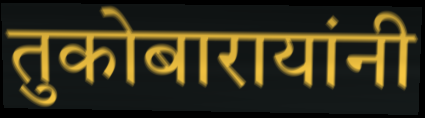
तुकोबारायांनी